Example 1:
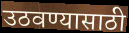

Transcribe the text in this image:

उठवण्यासाठी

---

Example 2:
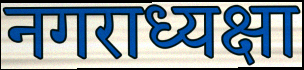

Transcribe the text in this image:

नगराध्यक्षा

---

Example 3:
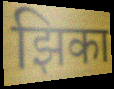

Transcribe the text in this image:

झिका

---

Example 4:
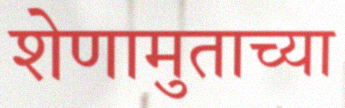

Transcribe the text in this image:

शेणामुताच्या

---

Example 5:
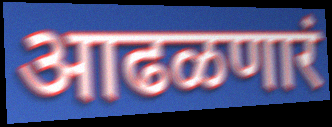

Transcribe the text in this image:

आढळणारं